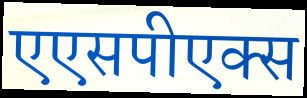
एएसपीएक्स